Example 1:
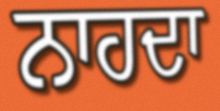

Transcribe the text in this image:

ਨਾਹਦਾ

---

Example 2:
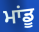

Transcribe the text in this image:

ਮਾਂਡੂ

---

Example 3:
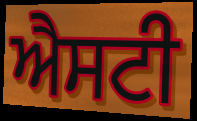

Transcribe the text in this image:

ਐਸਟੀ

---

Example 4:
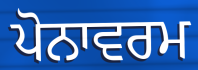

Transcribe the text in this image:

ਪੋਨਾਵਰਮ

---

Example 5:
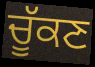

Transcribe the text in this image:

ਚੂੱਕਣ